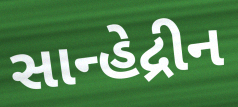
સાન્હેદ્રીન